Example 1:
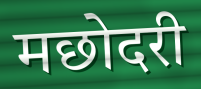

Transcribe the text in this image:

मछोदरी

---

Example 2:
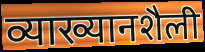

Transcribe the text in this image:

व्याख्यानशैली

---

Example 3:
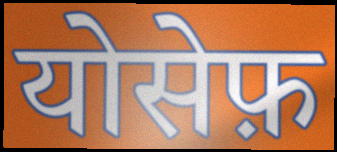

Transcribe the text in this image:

योसेफ़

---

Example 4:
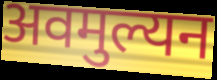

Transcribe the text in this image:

अवमुल्यन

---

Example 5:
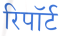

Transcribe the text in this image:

रिपॉर्ट